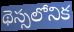
థెస్సలోనిక